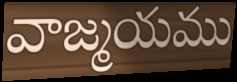
వాజ్మయము